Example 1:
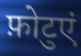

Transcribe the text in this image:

फ़ोटुएं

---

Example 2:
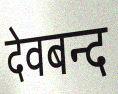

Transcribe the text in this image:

देवबन्द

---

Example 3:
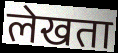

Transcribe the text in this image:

लेखता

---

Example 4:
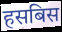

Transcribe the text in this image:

हसबिस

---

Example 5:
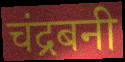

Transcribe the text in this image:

चंद्रबनी